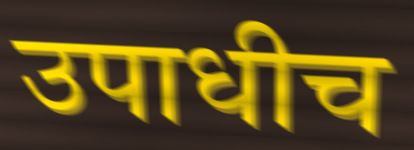
उपाधीच